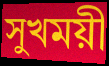
সুখময়ী